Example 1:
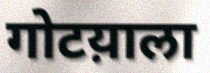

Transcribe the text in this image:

गोटय़ाला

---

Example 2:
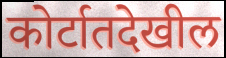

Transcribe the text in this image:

कोर्टातदेखील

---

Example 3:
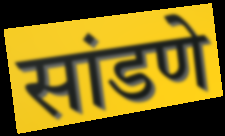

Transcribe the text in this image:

सांडणे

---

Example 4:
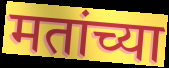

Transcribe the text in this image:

मतांच्या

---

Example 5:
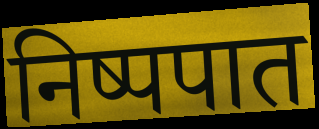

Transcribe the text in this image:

निष्पपात